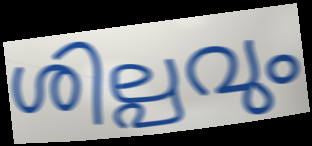
ശില്പവും